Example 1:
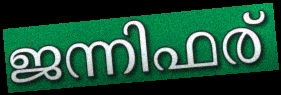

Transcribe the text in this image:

ജന്നിഫര്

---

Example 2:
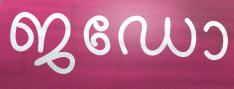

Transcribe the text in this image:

ജഡോ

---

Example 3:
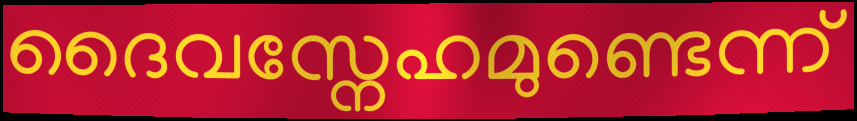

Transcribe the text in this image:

ദൈവസ്നേഹമുണ്ടെന്ന്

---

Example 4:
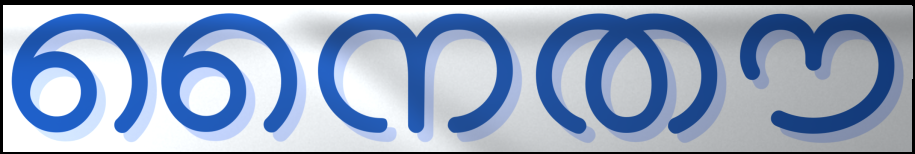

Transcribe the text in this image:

നൈതൗ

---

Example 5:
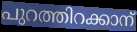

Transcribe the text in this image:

പുറത്തിറക്കാന്